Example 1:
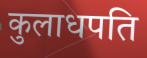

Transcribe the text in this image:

कुलाधपति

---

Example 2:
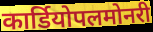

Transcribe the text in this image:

कार्डियोपलमोनरी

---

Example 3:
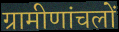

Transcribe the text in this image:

ग्रामीणांचलों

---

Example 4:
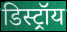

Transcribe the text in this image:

डिस्ट्रॉय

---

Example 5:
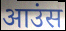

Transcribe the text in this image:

आउंस